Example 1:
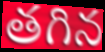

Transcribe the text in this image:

తగిన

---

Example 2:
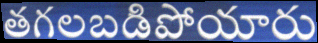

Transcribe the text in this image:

తగలబడిపోయారు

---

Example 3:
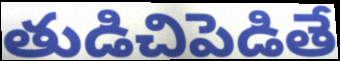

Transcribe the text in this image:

తుడిచిపెడితే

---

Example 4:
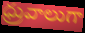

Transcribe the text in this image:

ధ్రువాలుగా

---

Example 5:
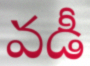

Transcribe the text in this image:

వడీ